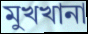
মুখখানা